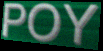
POY